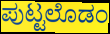
ಪುಟ್ಟಲೊಡಂ